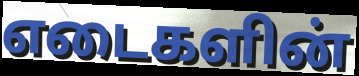
எடைகளின்